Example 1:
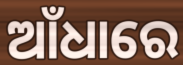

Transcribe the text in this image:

ଆଁଧାରେ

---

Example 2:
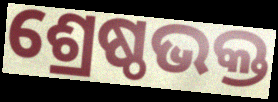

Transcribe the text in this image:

ଶ୍ରେଷ୍ଠଭକ୍ତ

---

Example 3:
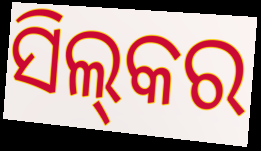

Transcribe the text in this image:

ସିଲ୍‍କର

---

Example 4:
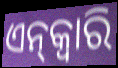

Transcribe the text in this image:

ଏନ୍‌କ୍ୱାରି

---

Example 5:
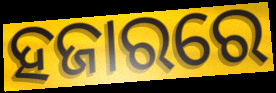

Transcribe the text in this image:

ହଜାରରେ